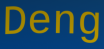
Deng